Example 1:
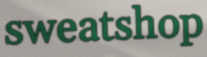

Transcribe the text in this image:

sweatshop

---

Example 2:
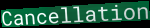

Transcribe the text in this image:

Cancellation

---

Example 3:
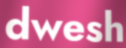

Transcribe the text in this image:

dwesh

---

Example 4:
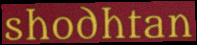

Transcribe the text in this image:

shodhtan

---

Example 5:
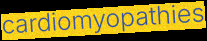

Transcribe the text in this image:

cardiomyopathies